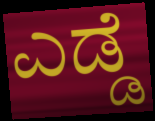
ಎಡ್ಡೆ